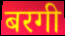
बरगी